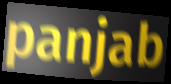
panjab